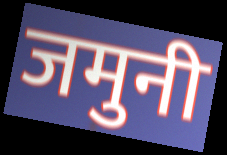
जमुनी